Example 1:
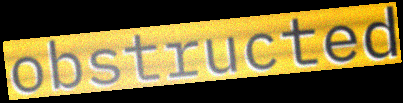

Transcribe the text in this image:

obstructed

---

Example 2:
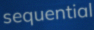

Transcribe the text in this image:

sequential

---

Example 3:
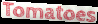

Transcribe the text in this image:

Tomatoes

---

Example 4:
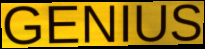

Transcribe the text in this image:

GENIUS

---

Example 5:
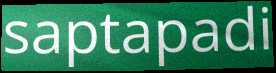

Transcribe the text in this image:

saptapadi